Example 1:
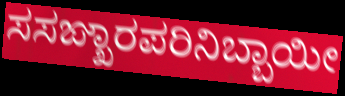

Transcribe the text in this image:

ಸಸಙ್ಖಾರಪರಿನಿಬ್ಬಾಯೀ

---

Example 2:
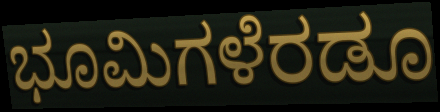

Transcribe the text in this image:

ಭೂಮಿಗಳೆರಡೂ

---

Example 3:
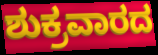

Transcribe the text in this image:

ಶುಕ್ರವಾರದ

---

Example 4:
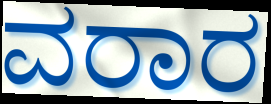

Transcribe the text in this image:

ವರಾರ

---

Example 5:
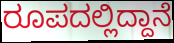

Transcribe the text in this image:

ರೂಪದಲ್ಲಿದ್ದಾನೆ